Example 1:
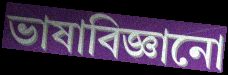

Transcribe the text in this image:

ভাষাবিজ্ঞানো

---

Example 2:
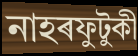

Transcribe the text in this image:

নাহৰফুটুকী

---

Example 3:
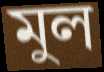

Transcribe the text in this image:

মুল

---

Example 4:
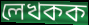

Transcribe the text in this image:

লেখকক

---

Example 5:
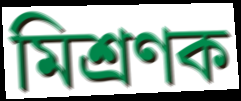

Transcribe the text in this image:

মিশ্ৰণক